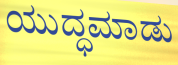
ಯುದ್ಧಮಾಡು